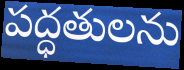
పద్ధతులను